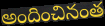
అందించినంత